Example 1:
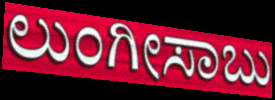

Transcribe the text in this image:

ಲುಂಗೀಸಾಬು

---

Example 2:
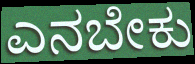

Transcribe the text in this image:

ಎನಬೇಕು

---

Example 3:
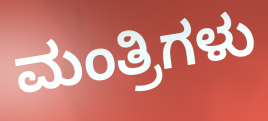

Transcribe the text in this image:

ಮಂತ್ರಿಗಳು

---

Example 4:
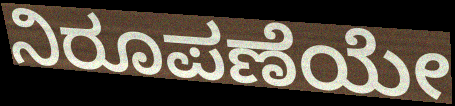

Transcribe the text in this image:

ನಿರೂಪಣೆಯೇ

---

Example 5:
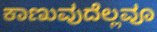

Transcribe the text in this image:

ಕಾಣುವುದೆಲ್ಲವೂ